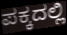
ಪಕ್ಕದಲ್ಲಿ